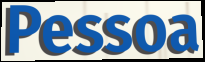
Pessoa